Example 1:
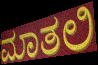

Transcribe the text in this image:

ಮಾತಲಿ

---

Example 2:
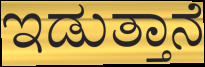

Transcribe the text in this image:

ಇಡುತ್ತಾನೆ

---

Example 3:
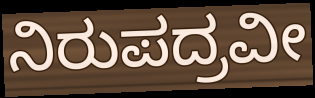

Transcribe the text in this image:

ನಿರುಪದ್ರವೀ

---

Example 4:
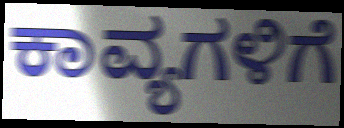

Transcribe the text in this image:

ಕಾವ್ಯಗಳಿಗೆ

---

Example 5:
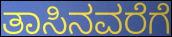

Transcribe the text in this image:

ತಾಸಿನವರೆಗೆ